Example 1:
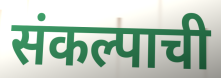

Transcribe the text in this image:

संकल्पाची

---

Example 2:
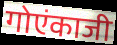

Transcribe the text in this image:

गोएंकाजी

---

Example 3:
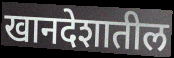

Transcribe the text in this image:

खानदेशातील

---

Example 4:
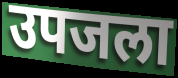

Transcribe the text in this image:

उपजला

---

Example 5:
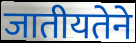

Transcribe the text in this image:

जातीयतेने